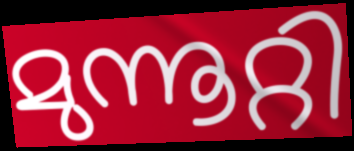
മുന്നൂറ്റി